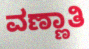
ವಣ್ಣಾತಿ